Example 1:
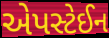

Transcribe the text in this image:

એપસ્ટેઈન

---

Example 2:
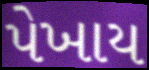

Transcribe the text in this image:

પેખાય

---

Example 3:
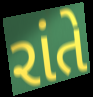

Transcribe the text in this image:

રાંતે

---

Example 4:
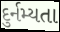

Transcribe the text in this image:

દુર્નમ્યતા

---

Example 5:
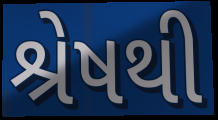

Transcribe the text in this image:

શ્રેષથી